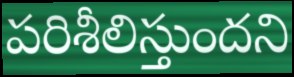
పరిశీలిస్తుందని